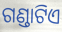
ଗଣ୍ଡାଟିଏ